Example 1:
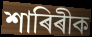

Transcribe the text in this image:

শাৰিৰীক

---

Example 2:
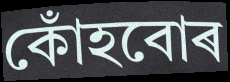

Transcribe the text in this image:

কোঁহবোৰ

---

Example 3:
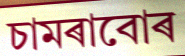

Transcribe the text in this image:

চামৰাবোৰ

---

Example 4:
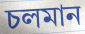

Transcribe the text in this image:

চলমান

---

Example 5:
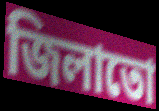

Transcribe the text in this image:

জিলাতো